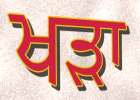
ਖੜਾ